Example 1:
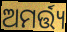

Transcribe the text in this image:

ଅମର୍ତ୍ତ୍ୟ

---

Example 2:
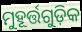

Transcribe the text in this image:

ମୁହୂର୍ତ୍ତଗୁଡ଼ିକ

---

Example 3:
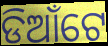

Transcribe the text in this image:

ଡିଆଁଟେ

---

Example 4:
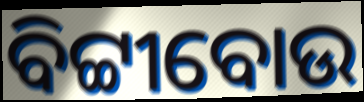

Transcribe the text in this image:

ବିଟ୍ଟୀବୋଉ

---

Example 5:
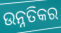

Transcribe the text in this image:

ଉନ୍ନତିକର